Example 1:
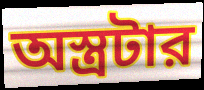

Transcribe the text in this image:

অস্ত্রটার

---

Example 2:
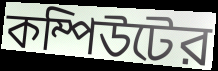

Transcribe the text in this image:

কম্পিউটের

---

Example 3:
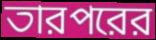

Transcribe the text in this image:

তারপরের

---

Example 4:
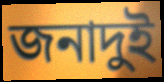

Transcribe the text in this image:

জনাদুই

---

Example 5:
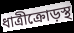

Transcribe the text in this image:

ধাত্রীক্রোড়স্থ